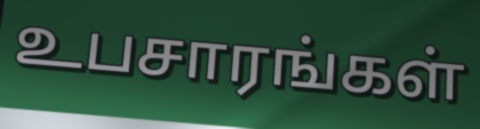
உபசாரங்கள்